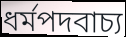
ধর্মপদবাচ্য